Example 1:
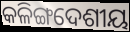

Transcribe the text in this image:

କଳିଙ୍ଗଦେଶୀୟ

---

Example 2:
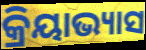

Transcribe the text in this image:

କ୍ରିୟାଭ୍ୟାସ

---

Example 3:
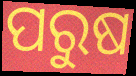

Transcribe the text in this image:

ପରୁଷ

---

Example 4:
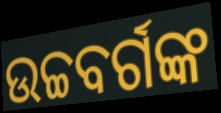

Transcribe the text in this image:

ଉଚ୍ଚବର୍ଗଙ୍କ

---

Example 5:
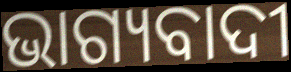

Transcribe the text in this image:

ଭାଗ୍ୟବାଦୀ